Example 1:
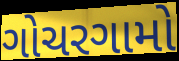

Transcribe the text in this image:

ગોચરગામો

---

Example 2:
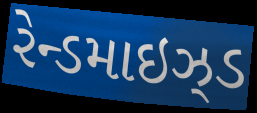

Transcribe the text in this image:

રેન્ડમાઇઝ્ડ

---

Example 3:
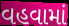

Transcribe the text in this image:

વહવામાં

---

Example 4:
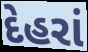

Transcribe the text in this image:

દેહરાં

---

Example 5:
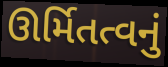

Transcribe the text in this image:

ઊર્મિતત્વનું